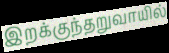
இறக்குந்தறுவாயில்